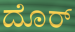
ದೊರ್